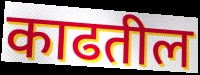
काढतील